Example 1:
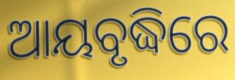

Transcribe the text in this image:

ଆୟବୃଦ୍ଧିରେ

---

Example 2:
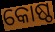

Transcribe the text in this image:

କୋଷ୍ଠ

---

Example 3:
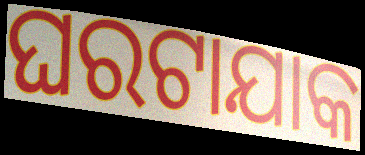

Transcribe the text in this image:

ଘରଟାଯାକ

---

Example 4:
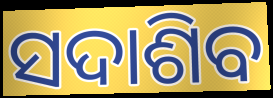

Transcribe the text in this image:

ସଦାଶିବ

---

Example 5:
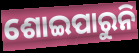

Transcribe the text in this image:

ଶୋଇପାରୁନି